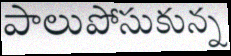
పాలుపోసుకున్న